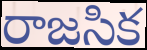
రాజసిక